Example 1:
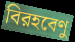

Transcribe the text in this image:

বিরহবেণু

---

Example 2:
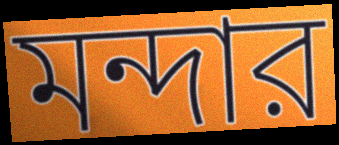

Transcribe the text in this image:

মন্দার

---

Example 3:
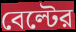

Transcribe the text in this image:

বেল্টের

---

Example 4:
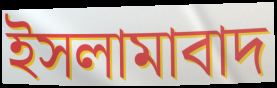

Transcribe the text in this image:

ইসলামাবাদ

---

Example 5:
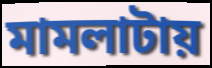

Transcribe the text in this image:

মামলাটায়